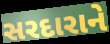
સરદારાને